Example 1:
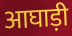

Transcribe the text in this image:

आघाड़ी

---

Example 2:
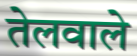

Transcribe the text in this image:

तेलवाले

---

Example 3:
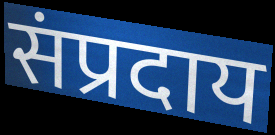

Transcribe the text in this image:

संप्रदाय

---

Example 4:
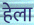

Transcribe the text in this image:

हेला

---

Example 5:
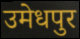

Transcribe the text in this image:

उमेधपुर